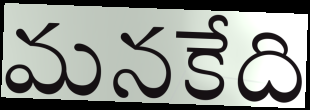
మనకేది